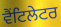
ਵੈਂਟਿਲੇਟਰ